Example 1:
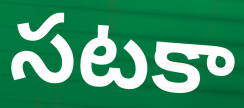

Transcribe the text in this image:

సటకా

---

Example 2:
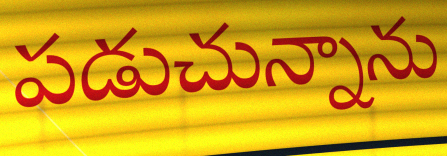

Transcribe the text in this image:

పడుచున్నాను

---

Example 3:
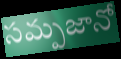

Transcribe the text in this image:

సమ్పజానో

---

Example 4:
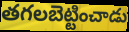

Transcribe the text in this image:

తగలబెట్టించాడు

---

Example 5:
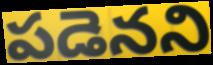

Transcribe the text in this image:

పడెనని